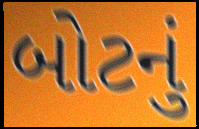
બોટનું